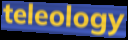
teleology